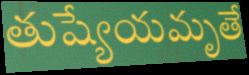
తుష్యేయమృతే